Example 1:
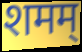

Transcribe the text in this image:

शमम्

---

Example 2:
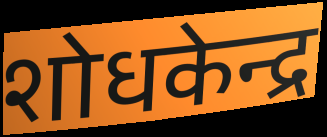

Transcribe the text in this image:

शोधकेन्द्र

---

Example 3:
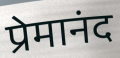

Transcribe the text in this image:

प्रेमानंद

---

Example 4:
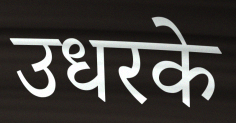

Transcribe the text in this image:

उधरके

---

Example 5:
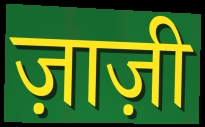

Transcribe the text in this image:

ज़ाज़ी